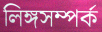
লিঙ্গসম্পর্ক